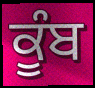
ਕੂੰਬ